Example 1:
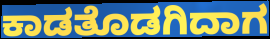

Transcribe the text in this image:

ಕಾಡತೊಡಗಿದಾಗ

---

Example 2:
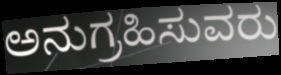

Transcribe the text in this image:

ಅನುಗ್ರಹಿಸುವರು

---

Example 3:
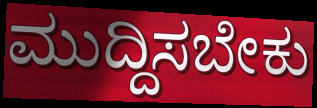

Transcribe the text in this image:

ಮುದ್ದಿಸಬೇಕು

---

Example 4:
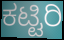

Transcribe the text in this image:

ಕಟ್ಟಿರಿ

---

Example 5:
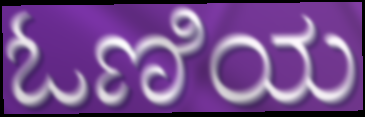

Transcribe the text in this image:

ಓಣಿಯ